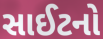
સાઈટનો